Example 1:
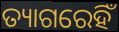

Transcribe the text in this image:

ତ୍ୟାଗରେହିଁ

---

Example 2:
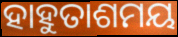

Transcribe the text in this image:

ହାହୁତାଶମୟ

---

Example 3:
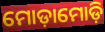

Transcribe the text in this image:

ମୋଡ଼ାମୋଡ଼ି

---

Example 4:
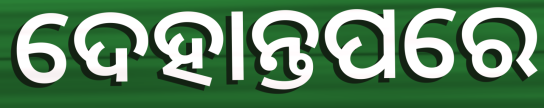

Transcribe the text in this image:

ଦେହାନ୍ତପରେ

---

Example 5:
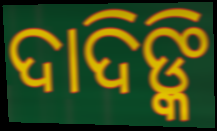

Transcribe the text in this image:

ଦାଦିଙ୍କି